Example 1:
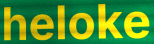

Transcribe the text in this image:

heloke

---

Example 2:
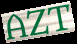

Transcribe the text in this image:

AZT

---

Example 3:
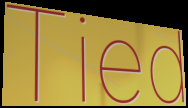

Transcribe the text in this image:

Tied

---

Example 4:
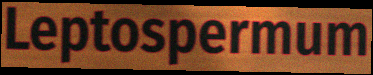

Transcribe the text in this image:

Leptospermum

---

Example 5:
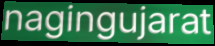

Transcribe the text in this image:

nagingujarat